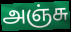
அஞ்சு